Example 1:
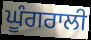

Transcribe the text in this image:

ਘੂੰਗਰਾਲੀ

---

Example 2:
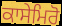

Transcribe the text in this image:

ਕਾਸੇਮਿਰੋ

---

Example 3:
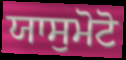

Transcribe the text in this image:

ਯਾਸੁਮੋਟੋ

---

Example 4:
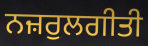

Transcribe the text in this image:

ਨਜ਼ਰੁਲਗੀਤੀ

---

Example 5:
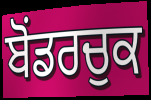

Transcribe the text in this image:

ਬੋਂਡਰਚੁਕ